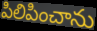
పిలిపించాను